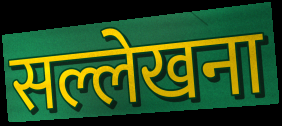
सल्लेखना